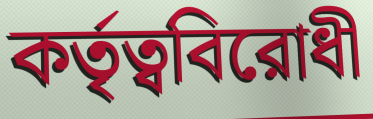
কর্তৃত্ববিরোধী